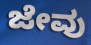
ಜೇವು